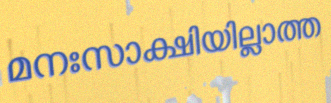
മനഃസാക്ഷിയില്ലാത്ത